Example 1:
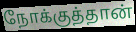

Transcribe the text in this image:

நோக்குத்தான்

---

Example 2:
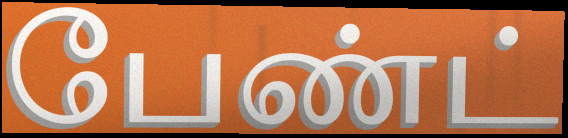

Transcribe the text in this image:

பேண்ட்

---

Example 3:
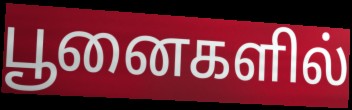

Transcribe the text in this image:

பூனைகளில்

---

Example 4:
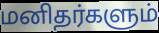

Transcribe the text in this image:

மனிதர்களும்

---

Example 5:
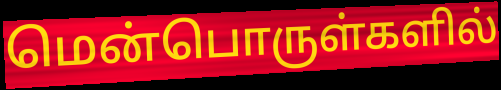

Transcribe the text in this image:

மென்பொருள்களில்